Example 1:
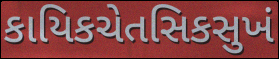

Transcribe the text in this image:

કાયિકચેતસિકસુખં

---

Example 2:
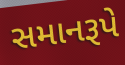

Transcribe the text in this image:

સમાનરૂપે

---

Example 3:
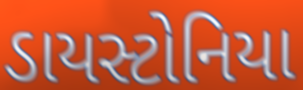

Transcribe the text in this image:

ડાયસ્ટોનિયા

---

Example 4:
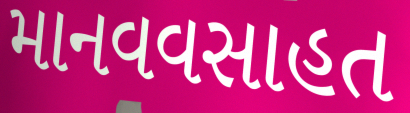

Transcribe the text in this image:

માનવવસાહત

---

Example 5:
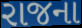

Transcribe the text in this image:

રાજના